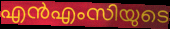
എൻഎംസിയുടെ